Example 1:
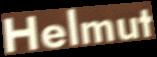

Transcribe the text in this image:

Helmut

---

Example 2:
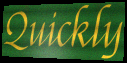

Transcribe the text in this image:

Quickly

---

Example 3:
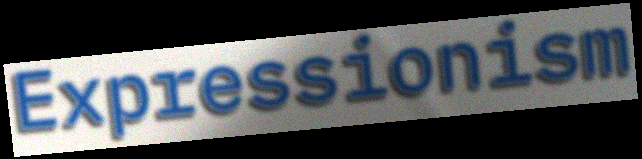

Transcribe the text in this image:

Expressionism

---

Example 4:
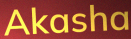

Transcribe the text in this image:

Akasha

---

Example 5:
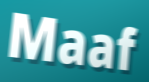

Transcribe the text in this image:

Maaf